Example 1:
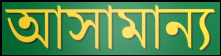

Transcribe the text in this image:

আসামান্য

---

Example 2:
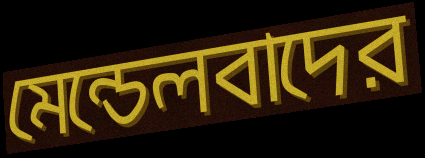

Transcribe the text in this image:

মেন্ডেলবাদের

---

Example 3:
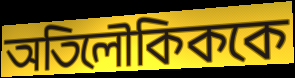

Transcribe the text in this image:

অতিলৌকিককে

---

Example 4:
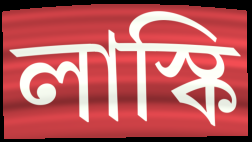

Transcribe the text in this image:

লাস্কি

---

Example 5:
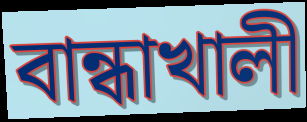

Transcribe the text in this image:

বান্ধাখালী